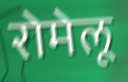
रोमेलू